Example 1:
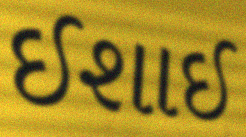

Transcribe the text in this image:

ઈશાઈ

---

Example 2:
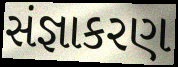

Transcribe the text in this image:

સંજ્ઞાકરણ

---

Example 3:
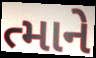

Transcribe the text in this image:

ત્માને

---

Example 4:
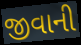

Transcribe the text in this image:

જીવાની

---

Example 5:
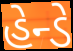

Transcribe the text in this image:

હેન્ડે